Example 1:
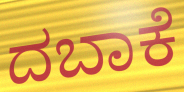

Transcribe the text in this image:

ದಬಾಕೆ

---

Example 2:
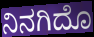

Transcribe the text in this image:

ನಿನಗಿದೊ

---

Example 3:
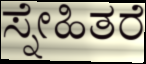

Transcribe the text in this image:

ಸ್ನೇಹಿತರೆ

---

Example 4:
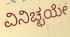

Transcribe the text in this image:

ವಿನಿಚ್ಛಯೇ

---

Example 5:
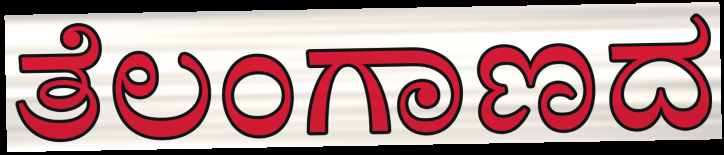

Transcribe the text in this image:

ತೆಲಂಗಾಣದ